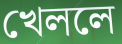
খেললে